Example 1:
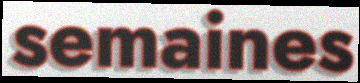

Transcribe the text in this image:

semaines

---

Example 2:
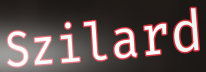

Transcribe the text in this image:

Szilard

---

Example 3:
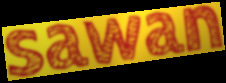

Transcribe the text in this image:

sawan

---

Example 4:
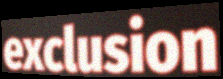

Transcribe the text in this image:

exclusion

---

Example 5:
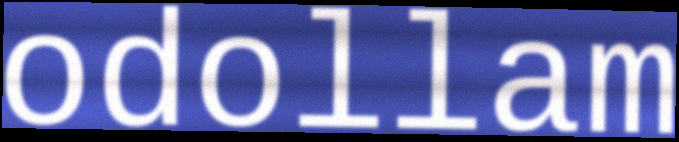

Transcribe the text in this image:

odollam